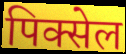
पिक्सेल